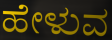
ಹೇಳುವ